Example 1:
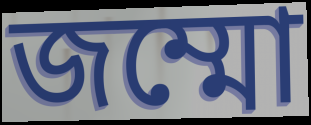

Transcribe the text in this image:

জম্মো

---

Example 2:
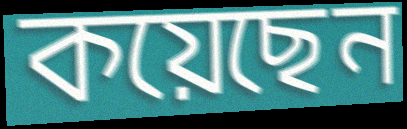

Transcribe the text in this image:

কয়েছেন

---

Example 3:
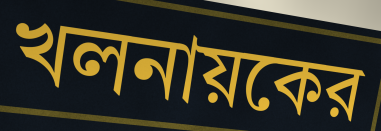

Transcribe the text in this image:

খলনায়কের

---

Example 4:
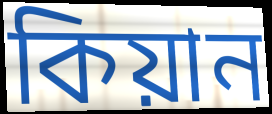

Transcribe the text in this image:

কিয়ান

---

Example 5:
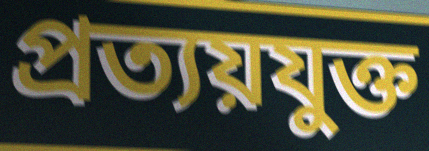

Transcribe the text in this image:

প্রত্যয়যুক্ত